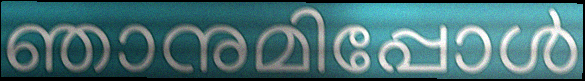
ഞാനുമിപ്പോൾ